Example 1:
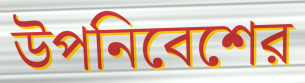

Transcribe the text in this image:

উপনিবেশের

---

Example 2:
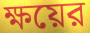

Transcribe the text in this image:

ক্ষয়ের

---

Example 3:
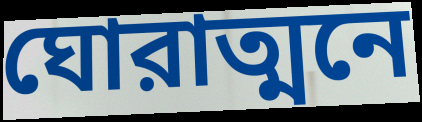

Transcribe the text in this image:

ঘোরাত্মনে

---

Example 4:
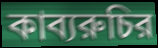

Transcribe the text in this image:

কাব্যরুচির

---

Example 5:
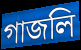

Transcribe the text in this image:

গাজলি